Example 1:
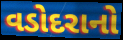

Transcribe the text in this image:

વડોદરાનો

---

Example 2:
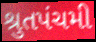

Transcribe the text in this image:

શ્રુતપંચમી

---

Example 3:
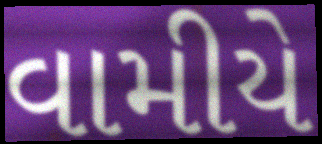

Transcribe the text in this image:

વામીયે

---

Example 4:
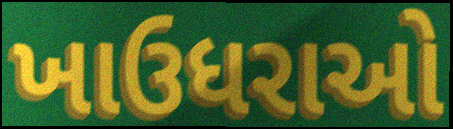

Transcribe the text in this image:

ખાઉધરાઓ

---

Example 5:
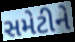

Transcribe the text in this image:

સમેટીને